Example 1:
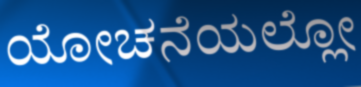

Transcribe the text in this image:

ಯೋಚನೆಯಲ್ಲೋ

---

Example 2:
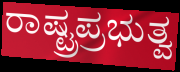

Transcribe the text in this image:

ರಾಷ್ಟ್ರಪ್ರಭುತ್ವ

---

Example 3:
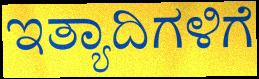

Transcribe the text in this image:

ಇತ್ಯಾದಿಗಳಿಗೆ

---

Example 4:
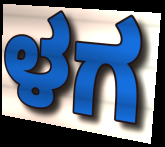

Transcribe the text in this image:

ಳಗ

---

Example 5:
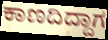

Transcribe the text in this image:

ಕಾಣದಿದ್ದಾಗ